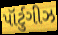
પૉર્ટુગીઝ